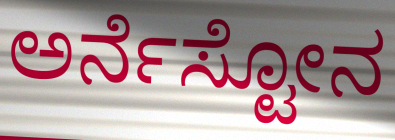
ಅರ್ನೆಸ್ಟೋನ